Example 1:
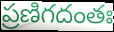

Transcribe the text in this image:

ప్రణిగదంతః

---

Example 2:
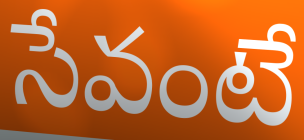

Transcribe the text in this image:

సేవంటే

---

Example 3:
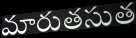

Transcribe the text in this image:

మారుతసుత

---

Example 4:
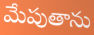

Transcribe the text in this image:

మేపుతాను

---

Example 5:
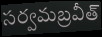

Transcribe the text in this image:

సర్వమబ్రవీత్